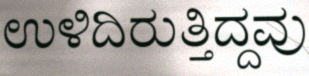
ಉಳಿದಿರುತ್ತಿದ್ದವು